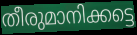
തീരുമാനിക്കട്ടെ